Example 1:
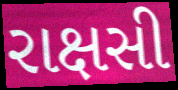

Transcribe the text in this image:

રાક્ષસી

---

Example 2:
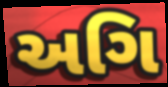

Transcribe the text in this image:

અગિ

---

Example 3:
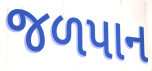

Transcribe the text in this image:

જળપાન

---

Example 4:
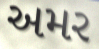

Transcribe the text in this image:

અમર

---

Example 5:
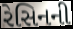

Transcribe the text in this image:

રેસિનની